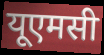
यूएमसी